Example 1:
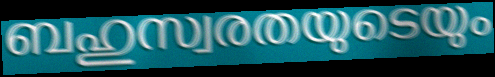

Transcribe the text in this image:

ബഹുസ്വരതയുടെയും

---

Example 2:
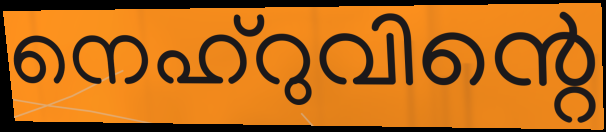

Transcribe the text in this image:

നെഹ്റുവിന്റെ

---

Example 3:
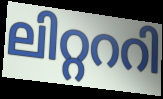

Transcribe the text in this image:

ലിറ്റററി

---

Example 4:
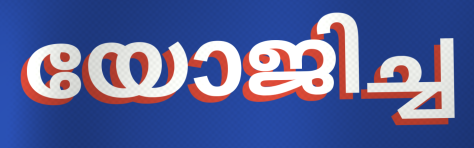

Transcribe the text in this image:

യോജിച്ച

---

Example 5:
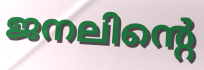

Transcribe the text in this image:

ജനലിന്റെ